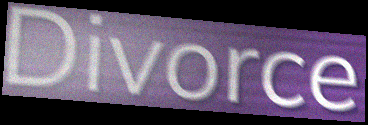
Divorce